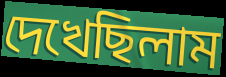
দেখেছিলাম